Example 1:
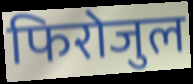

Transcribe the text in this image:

फिरोजुल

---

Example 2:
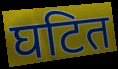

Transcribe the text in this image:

घटित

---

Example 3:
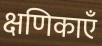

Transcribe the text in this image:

क्षणिकाएँ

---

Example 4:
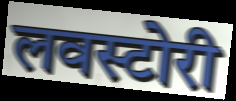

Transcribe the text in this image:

लवस्‍टोरी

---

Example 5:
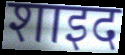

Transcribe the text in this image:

शाइद